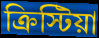
ক্রিস্টিয়া